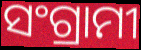
ସଂଗ୍ରାମୀ